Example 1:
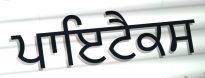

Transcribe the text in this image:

ਪਾਇਟੈਕਸ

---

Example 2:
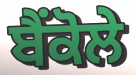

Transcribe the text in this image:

ਬੈਂਕੋਲੇ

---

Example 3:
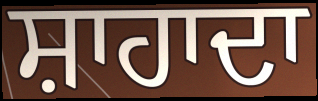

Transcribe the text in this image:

ਸ਼ਾਹਾਦਾ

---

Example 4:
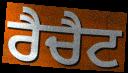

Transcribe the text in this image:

ਰੈਚੈਟ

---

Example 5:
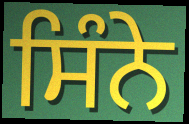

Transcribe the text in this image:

ਸਿੰਨੇ